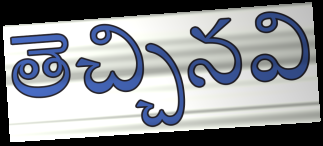
తెచ్చినవి